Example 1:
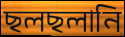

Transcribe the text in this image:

ছলছলানি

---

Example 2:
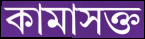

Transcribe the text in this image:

কামাসক্ত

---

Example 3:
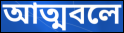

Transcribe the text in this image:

আত্মবলে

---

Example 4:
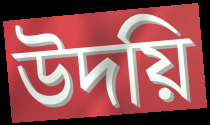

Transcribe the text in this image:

উদয়ি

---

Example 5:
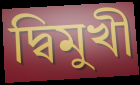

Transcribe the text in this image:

দ্বিমুখী